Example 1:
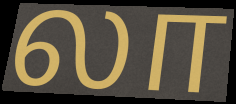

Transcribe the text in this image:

லா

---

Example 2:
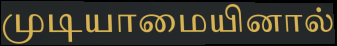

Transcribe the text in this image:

முடியாமையினால்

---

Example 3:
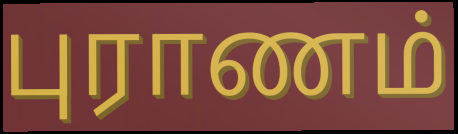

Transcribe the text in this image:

புராணம்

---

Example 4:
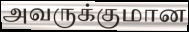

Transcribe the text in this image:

அவருக்குமான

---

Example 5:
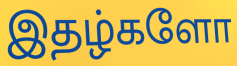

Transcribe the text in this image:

இதழ்களோ